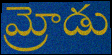
మ్రోడు